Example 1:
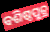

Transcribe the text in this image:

ବଶିଷ୍ଠପୁତ୍ର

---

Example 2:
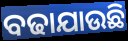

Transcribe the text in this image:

ବଢାଯାଉଛି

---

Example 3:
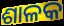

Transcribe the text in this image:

ଶାଳକ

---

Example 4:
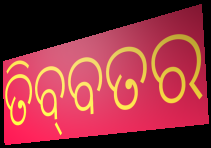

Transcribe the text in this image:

ତିବ୍‌ବତର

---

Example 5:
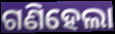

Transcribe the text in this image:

ଗଣିହେଲା